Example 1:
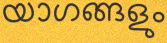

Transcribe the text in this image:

യാഗങ്ങളും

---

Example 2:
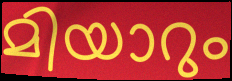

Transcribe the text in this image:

മിയാറും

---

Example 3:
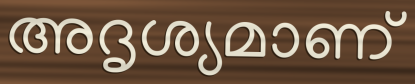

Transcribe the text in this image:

അദൃശ്യമാണ്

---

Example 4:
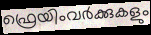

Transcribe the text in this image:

ഫ്രെയിംവർക്കുകളും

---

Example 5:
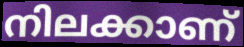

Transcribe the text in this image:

നിലക്കാണ്